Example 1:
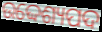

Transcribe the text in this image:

ଉଦ୍ଦେଶ୍ୟପଦ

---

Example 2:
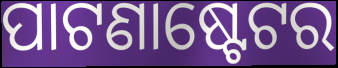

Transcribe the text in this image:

ପାଟଣାଷ୍ଟେଟର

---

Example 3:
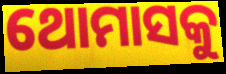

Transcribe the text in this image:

ଥୋମାସକୁ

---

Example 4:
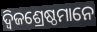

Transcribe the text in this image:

ଦ୍ୱିଜଶ୍ରେଷ୍ଠମାନେ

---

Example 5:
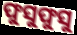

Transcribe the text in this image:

ଫୁସୁଫୁସୁ